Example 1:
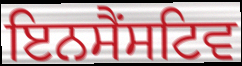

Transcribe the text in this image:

ਇਨਸੈਂਸਟਿਵ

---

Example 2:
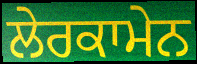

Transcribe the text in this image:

ਲੇਰਕਾਮੇਨ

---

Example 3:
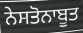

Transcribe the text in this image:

ਨੇਸਤੋਨਾਬੂਤ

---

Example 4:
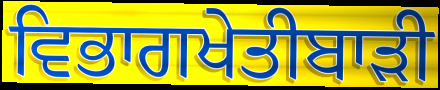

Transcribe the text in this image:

ਵਿਭਾਗਖੇਤੀਬਾੜੀ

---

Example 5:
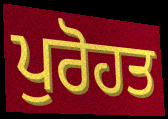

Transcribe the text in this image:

ਪੁਰੋਹਤ